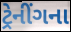
ટ્રેનીંગના